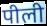
पीली